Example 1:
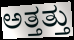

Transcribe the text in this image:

ಅತ್ತತ್ತು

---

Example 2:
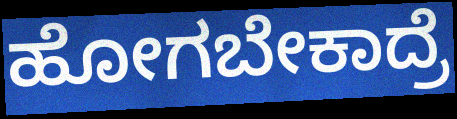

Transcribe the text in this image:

ಹೋಗಬೇಕಾದ್ರೆ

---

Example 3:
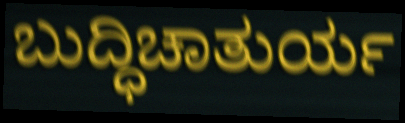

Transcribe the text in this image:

ಬುದ್ಧಿಚಾತುರ್ಯ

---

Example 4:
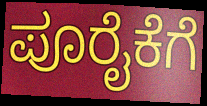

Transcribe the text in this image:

ಪೂರೈಕೆಗೆ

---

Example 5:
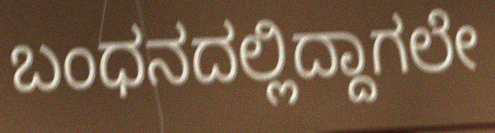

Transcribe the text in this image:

ಬಂಧನದಲ್ಲಿದ್ದಾಗಲೇ